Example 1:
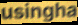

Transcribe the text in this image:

usingha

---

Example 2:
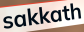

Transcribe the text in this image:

sakkath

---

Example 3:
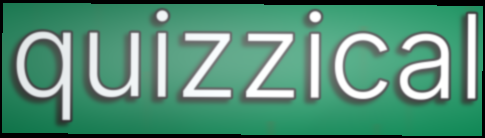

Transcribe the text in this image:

quizzical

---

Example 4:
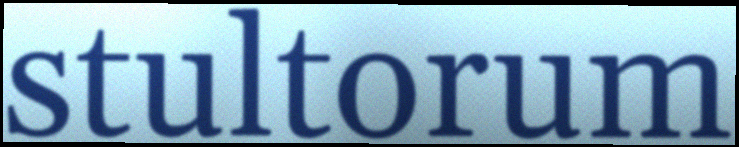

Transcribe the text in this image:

stultorum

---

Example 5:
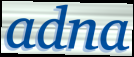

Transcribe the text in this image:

adna